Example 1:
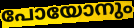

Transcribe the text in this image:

പോയോനും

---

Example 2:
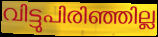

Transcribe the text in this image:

വിട്ടുപിരിഞ്ഞില്ല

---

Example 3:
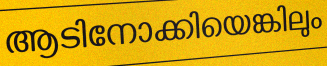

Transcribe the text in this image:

ആടിനോക്കിയെങ്കിലും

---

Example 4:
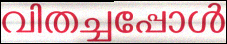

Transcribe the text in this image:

വിതച്ചപ്പോൾ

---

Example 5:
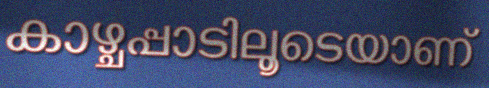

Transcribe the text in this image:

കാഴ്ചപ്പാടിലൂടെയാണ്